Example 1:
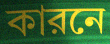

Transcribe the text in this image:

কারনে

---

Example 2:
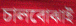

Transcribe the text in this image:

চালবোঝাই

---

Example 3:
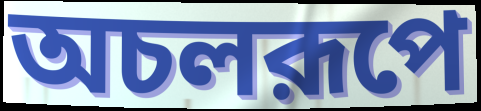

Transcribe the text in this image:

অচলরূপে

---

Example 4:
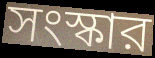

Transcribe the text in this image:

সংস্কার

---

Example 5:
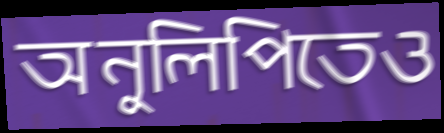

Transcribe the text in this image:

অনুলিপিতেও